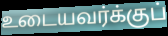
உடையவர்க்குப்